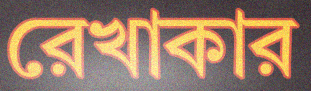
রেখাকার